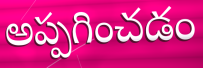
అప్పగించడం